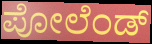
ಪೋಲೆಂಡ್